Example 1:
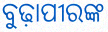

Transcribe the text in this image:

ବୁଢ଼ାପୀରଙ୍କ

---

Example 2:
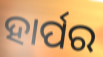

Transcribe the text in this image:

ହାର୍ପର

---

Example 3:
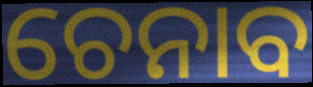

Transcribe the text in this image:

ଚେନାବ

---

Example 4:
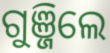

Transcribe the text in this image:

ଗୁଞ୍ଜିଲେ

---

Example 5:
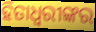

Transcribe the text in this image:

ହିତାଧ୍ଵରୀଙ୍କର